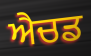
ਐਚਡ